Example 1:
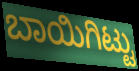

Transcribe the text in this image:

ಬಾಯಿಗಿಟ್ಟು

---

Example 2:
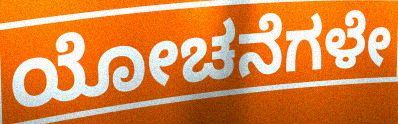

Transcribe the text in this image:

ಯೋಚನೆಗಳೇ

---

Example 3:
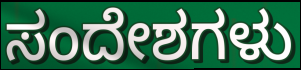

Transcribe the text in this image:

ಸಂದೇಶಗಳು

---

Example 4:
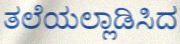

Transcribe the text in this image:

ತಲೆಯಲ್ಲಾಡಿಸಿದ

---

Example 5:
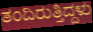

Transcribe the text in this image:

ತಂದಿರುತ್ತಿದ್ದಳು